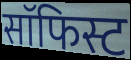
सॉफिस्ट